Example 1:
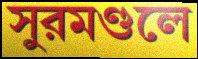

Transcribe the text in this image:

সুরমণ্ডলে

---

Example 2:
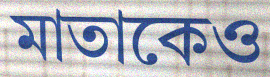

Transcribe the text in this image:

মাতাকেও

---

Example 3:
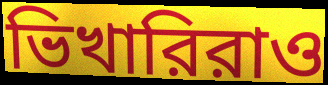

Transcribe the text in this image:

ভিখারিরাও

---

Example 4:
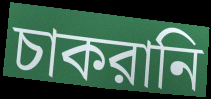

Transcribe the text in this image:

চাকরানি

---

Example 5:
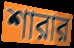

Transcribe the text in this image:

শারার